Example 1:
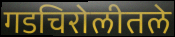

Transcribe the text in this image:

गडचिरोलीतले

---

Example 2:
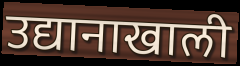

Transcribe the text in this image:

उद्यानाखाली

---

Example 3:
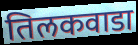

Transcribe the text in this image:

तिलकवाडा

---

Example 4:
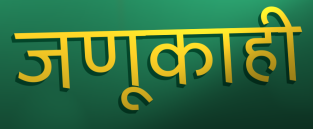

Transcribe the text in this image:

जणूकाही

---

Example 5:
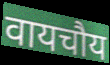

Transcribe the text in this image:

वायचौय